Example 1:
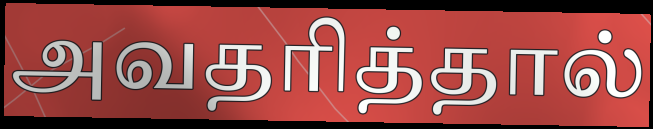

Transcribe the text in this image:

அவதரித்தால்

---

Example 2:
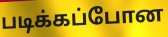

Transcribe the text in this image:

படிக்கப்போன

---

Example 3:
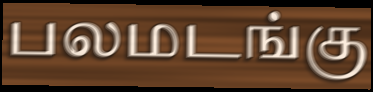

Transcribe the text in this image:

பலமடங்கு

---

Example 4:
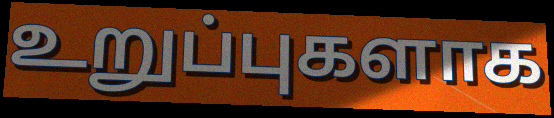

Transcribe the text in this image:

உறுப்புகளாக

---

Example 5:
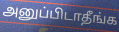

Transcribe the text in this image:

அனுப்பிடாதீங்க